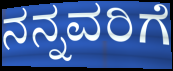
ನನ್ನವರಿಗೆ